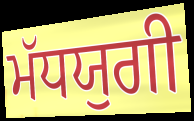
ਮੱਧਯੁਗੀ